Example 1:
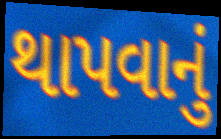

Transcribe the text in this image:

થાપવાનું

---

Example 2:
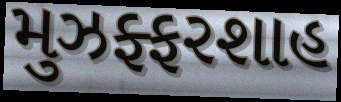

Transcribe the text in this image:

મુઝફ્ફરશાહ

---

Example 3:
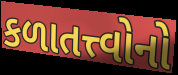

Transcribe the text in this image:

કળાતત્ત્વોનો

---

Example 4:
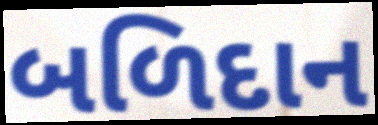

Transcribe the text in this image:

બળિદાન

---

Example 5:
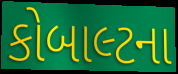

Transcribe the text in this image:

કોબાલ્ટના